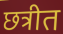
छत्रीत